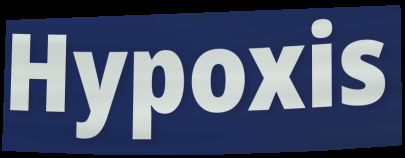
Hypoxis